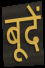
बूदें